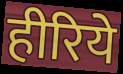
हीरिये